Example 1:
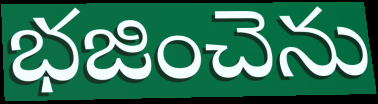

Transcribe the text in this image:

భజించెను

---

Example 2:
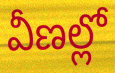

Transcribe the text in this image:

వీణల్లో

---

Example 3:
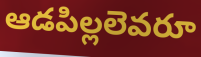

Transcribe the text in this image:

ఆడపిల్లలెవరూ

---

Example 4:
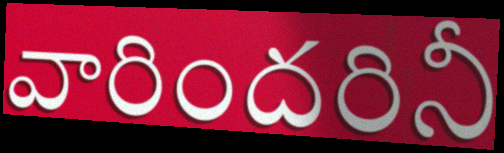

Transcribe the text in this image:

వారిందరినీ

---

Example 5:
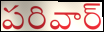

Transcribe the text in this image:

పరివార్